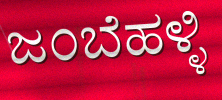
ಜಂಬೆಹಳ್ಳಿ